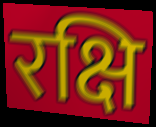
रक्षि